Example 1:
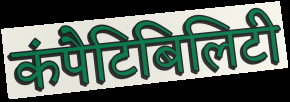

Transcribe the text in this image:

कंपैटिबिलिटी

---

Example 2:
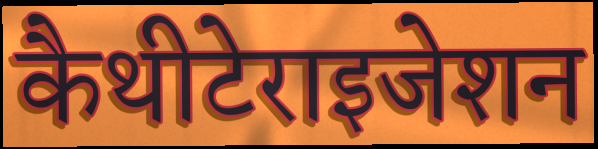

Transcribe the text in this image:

कैथीटेराइजेशन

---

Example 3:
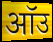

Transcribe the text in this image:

ऑउ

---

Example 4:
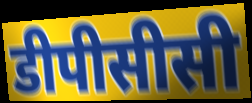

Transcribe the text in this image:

डीपीसीसी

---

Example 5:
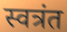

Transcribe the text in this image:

स्वत्रंत